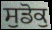
ਸੁਡੋਕੁ